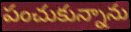
పంచుకున్నాను